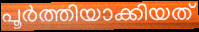
പൂർത്തിയാക്കിയത്